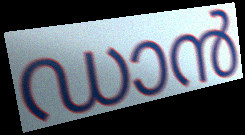
ഡാൻ